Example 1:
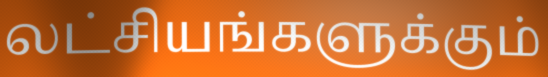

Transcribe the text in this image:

லட்சியங்களுக்கும்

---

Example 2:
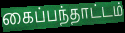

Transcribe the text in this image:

கைப்பந்தாட்டம்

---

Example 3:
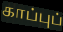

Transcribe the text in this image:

காப்புப்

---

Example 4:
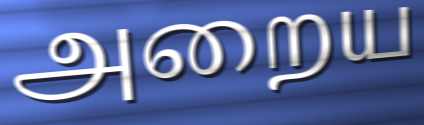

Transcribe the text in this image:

அறைய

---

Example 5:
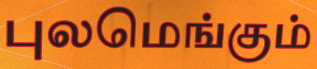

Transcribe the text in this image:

புலமெங்கும்